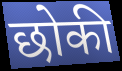
छोकी